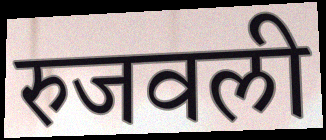
रुजवली